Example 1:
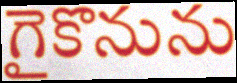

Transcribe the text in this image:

గైకొనును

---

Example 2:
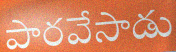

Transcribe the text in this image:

పారవేసాడు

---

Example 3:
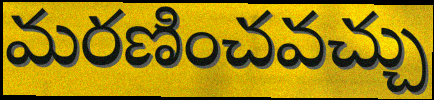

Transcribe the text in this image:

మరణించవచ్చు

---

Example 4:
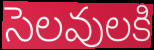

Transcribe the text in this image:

సెలవులకి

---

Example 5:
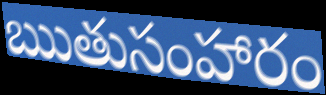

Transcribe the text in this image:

ఋతుసంహారం